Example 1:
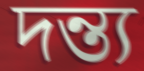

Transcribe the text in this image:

দন্ত্য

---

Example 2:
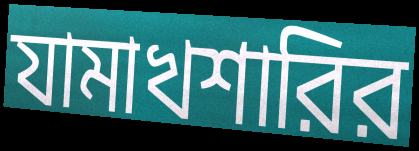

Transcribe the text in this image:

যামাখশারির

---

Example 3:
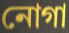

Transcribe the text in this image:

নোগা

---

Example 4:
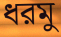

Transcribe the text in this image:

ধরমু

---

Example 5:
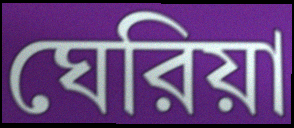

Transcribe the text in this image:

ঘেরিয়া